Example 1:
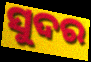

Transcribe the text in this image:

ସୁଦର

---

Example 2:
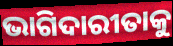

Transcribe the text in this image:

ଭାଗିଦାରୀତାକୁ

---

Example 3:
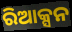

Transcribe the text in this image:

ରିଆକ୍ସନ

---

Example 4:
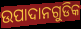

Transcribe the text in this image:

ଉପାଦାନଗୁଡିକ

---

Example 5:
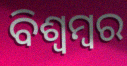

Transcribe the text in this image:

ବିଶ୍ଵମ୍ବର